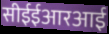
सीईईआरआई